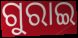
ଗୁରାଇ